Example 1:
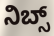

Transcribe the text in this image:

ನಿಬ್ಸ್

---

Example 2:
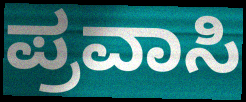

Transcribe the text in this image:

ಪ್ರವಾಸಿ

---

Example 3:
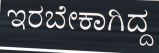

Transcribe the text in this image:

ಇರಬೇಕಾಗಿದ್ದ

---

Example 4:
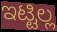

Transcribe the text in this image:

ಇಟ್ಟಿಲ್ಲ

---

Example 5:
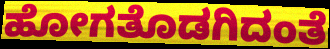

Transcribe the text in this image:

ಹೋಗತೊಡಗಿದಂತೆ